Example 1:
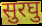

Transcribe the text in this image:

सुरघु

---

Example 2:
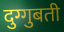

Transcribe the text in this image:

दुग्गुबती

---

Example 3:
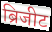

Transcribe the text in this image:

ब्रिजीट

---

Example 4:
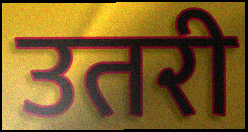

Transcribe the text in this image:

उतरी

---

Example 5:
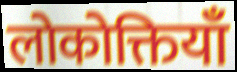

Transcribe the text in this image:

लोकोक्तियाँ